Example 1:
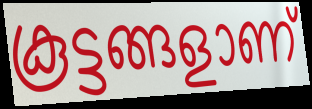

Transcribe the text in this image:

കൂട്ടങ്ങളാണ്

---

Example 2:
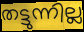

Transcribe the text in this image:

തട്ടുന്നില്ല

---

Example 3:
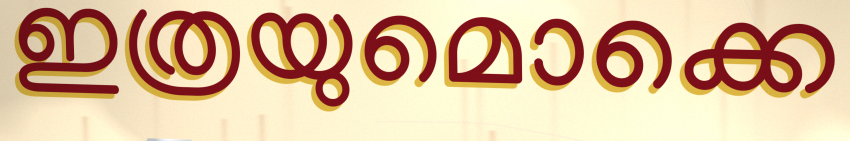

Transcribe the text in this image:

ഇത്രയുമൊക്കെ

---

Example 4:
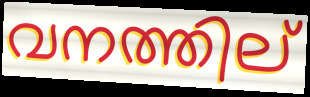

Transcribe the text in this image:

വനത്തില്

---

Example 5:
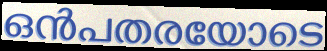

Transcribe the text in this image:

ഒൻപതരയോടെ